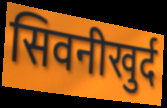
सिवनीखुर्द